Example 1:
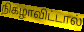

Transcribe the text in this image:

நிகழாவிட்டால்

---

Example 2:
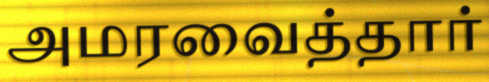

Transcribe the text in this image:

அமரவைத்தார்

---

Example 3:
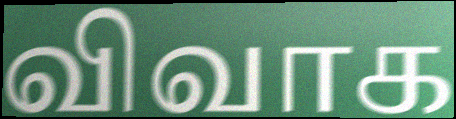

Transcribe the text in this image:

விவாக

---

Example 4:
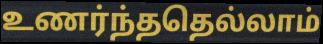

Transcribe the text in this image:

உணர்ந்ததெல்லாம்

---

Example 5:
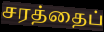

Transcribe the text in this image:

சரத்தைப்